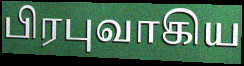
பிரபுவாகிய